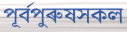
পূৰ্বপুৰুষসকল